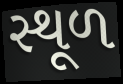
સ્થૂળ